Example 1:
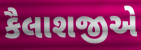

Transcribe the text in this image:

કૈલાશજીએ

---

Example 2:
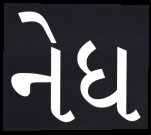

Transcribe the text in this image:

નેધ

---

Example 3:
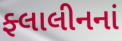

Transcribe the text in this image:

ફ્લાલીનનાં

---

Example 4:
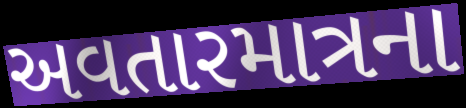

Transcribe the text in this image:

અવતારમાત્રના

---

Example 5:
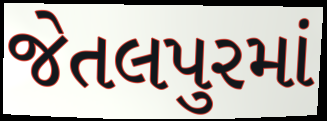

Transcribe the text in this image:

જેતલપુરમાં